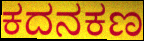
ಕದನಕಣ